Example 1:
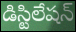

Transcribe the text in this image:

డిస్టిలేషన్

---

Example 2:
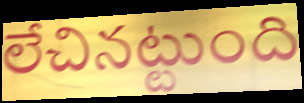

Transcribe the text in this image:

లేచినట్టుంది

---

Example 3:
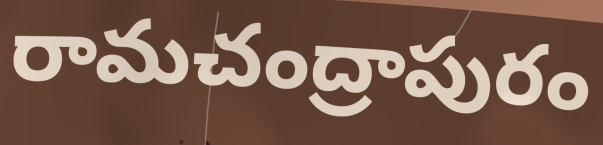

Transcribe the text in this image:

రామచంద్రాపురం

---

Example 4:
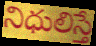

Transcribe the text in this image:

నిధులిస్తే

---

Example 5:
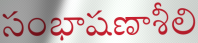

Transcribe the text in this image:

సంభాషణాశీలి